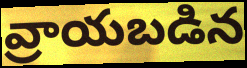
వ్రాయబడిన